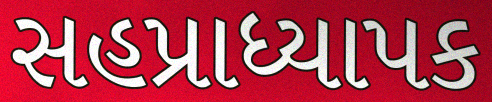
સહપ્રાધ્યાપક